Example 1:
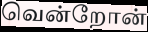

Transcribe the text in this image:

வென்றோன்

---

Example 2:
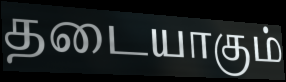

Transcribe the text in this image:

தடையாகும்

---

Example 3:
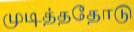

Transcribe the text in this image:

முடித்ததோடு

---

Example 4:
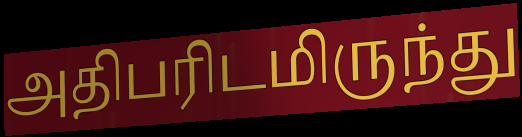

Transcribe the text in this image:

அதிபரிடமிருந்து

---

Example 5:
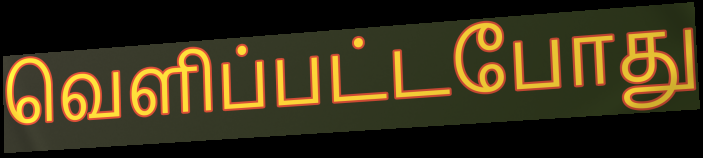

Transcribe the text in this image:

வெளிப்பட்டபோது